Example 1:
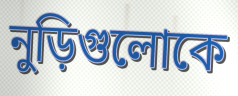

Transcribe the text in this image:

নুড়িগুলোকে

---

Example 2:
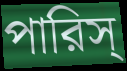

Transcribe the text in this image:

পারিস্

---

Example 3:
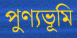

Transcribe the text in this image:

পুণ্যভূমি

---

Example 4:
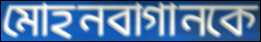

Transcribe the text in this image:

মোহনবাগানকে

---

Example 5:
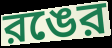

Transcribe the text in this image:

রঙের